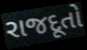
રાજદૂતો